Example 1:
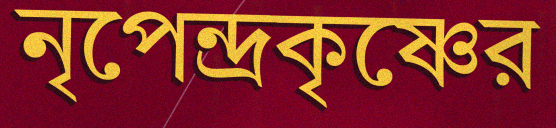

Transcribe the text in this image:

নৃপেন্দ্রকৃষ্ণের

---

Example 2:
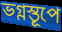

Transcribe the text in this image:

ভগ্নস্তূপে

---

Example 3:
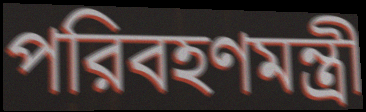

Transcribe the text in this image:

পরিবহণমন্ত্রী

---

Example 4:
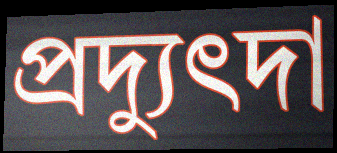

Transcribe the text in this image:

প্রদ্যুৎদা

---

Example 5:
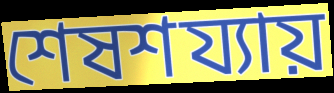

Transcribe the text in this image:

শেষশয্যায়